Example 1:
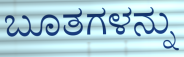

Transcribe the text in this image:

ಬೂತಗಳನ್ನು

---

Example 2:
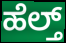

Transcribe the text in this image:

ಹೆಲ್ತ್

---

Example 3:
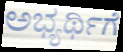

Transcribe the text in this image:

ಅಭ್ಯರ್ಥಿಗೆ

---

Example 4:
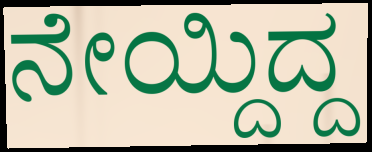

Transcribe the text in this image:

ನೇಯ್ದಿದ್ದ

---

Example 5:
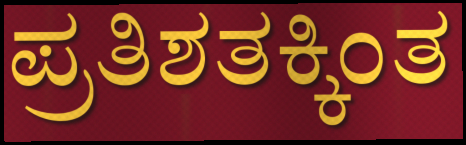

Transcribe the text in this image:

ಪ್ರತಿಶತಕ್ಕಿಂತ